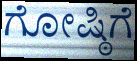
ಗೋಷ್ಠಿಗೆ